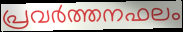
പ്രവർത്തനഫലം